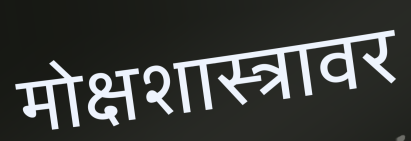
मोक्षशास्त्रावर